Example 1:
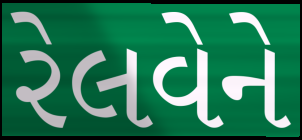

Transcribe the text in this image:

રેલવેને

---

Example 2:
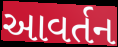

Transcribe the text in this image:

આવર્તન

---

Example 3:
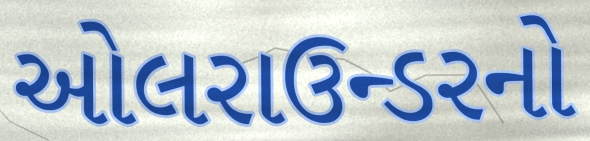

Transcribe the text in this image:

ઓલરાઉન્ડરનો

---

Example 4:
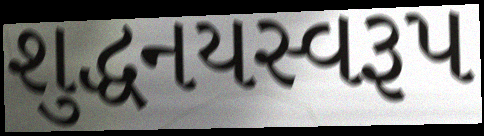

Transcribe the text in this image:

શુદ્ધનયસ્વરૂપ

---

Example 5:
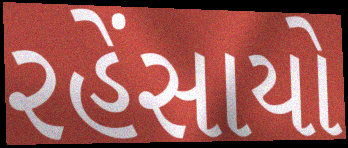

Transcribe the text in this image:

રહેંસાયો